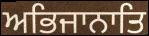
ਅਭਿਜਾਨਾਤਿ